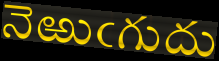
నెఱుఁగుదు